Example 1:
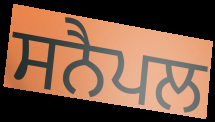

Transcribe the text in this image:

ਸਨੈਪਲ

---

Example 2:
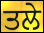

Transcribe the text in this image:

ਤਲੇ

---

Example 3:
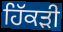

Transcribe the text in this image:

ਹਿੱਕੜੀ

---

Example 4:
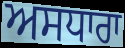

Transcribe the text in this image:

ਅਸਧਾਰਾ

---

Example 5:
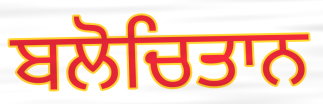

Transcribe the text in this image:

ਬਲੋਚਿਤਾਨ